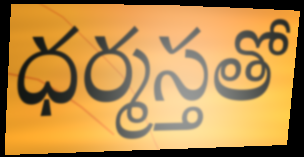
ధర్మస్తతో